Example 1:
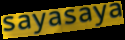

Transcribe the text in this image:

sayasaya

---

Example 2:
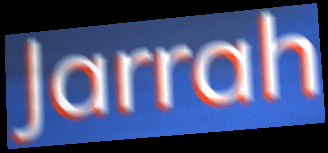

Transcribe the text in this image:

Jarrah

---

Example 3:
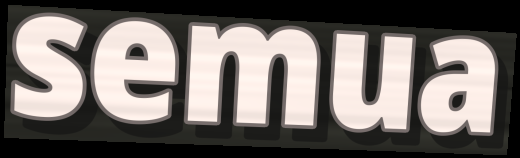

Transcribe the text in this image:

semua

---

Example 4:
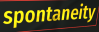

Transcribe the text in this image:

spontaneity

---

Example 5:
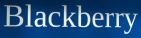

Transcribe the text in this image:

Blackberry